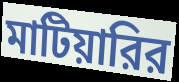
মাটিয়ারির